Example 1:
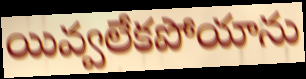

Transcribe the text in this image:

యివ్వలేకపోయాను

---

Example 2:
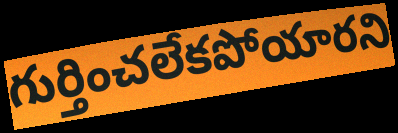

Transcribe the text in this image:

గుర్తించలేకపోయారని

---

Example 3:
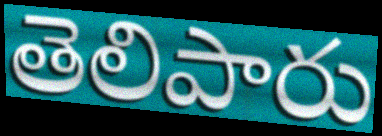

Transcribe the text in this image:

తెలిపారు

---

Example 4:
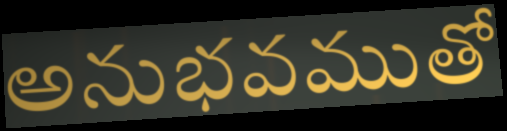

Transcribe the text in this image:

అనుభవముతో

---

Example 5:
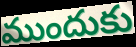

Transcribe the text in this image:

ముందుకు